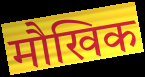
मौखिक